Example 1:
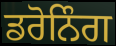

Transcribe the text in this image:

ਡਰੋਨਿੰਗ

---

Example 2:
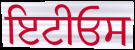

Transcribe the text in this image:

ਇਟੀਓਸ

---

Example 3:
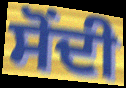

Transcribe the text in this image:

ਸੋਂਦੀ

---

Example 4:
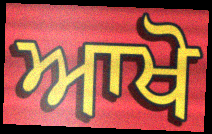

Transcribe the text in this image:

ਆਖੋ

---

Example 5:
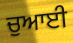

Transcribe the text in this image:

ਚੁਆਈ